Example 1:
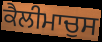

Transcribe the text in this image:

ਕੈਲੀਮਾਚੁਸ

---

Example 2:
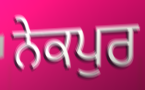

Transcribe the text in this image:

ਨੇਕਪੁਰ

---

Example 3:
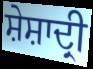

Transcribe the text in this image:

ਸ਼ੇਸ਼ਾਦ੍ਰੀ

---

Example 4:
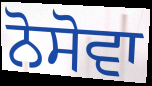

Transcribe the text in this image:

ਨੋਸੋਵਾ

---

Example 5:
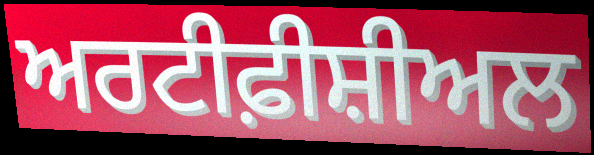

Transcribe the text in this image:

ਅਰਟੀਫ਼ੀਸ਼ੀਅਲ